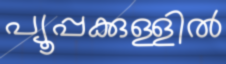
പ്യൂപ്പക്കുള്ളിൽ